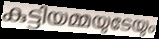
കുട്ടിയമ്മയുടേയും